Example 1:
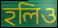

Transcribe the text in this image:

হলিও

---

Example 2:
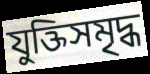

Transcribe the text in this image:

যুক্তিসমৃদ্ধ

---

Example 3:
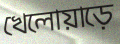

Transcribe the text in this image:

খেলোয়াড়ে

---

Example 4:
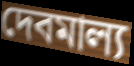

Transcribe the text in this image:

দেবমাল্য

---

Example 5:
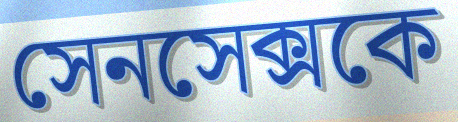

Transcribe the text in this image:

সেনসেক্সকে